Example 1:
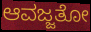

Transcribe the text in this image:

ಆವಜ್ಜತೋ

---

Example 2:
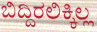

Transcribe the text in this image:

ಬಿದ್ದಿರಲಿಕ್ಕಿಲ್ಲ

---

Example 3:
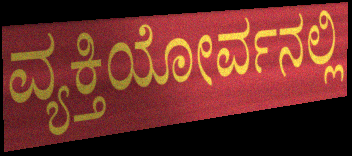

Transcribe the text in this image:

ವ್ಯಕ್ತಿಯೋರ್ವನಲ್ಲಿ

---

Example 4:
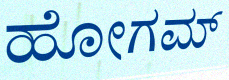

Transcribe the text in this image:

ಹೋಗಮ್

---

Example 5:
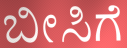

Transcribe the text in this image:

ಬೀಸಿಗೆ